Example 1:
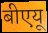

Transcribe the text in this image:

बीएयू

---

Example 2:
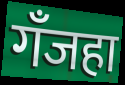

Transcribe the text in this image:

गँजहा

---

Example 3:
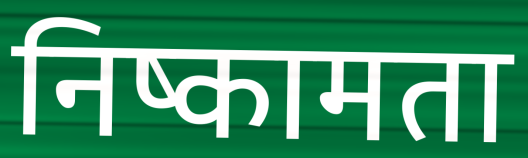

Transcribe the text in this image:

निष्कामता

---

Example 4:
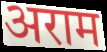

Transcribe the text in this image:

अराम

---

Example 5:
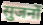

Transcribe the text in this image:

सुजनों